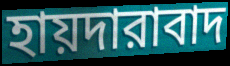
হায়দারাবাদ